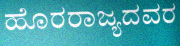
ಹೊರರಾಜ್ಯದವರ